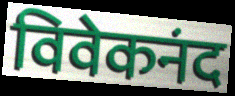
विवेकनंद